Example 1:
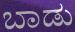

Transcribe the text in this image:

ಬಾಡು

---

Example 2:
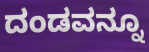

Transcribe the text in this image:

ದಂಡವನ್ನೂ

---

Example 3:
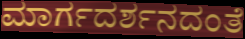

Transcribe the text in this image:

ಮಾರ್ಗದರ್ಶನದಂತೆ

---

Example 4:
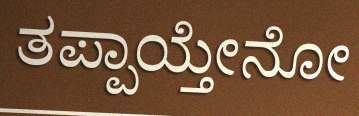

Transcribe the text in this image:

ತಪ್ಪಾಯ್ತೇನೋ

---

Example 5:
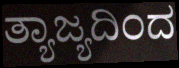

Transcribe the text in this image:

ತ್ಯಾಜ್ಯದಿಂದ